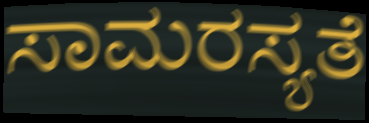
ಸಾಮರಸ್ಯತೆ